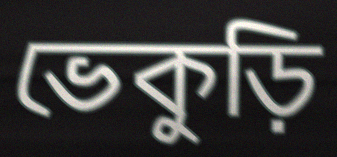
ভেকুড়ি